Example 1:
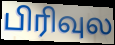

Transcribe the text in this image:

பிரிவுல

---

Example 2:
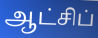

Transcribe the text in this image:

ஆட்சிப்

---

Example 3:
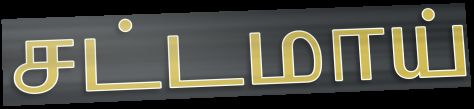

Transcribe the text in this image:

சட்டமாய்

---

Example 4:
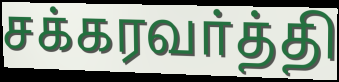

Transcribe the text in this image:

சக்கரவர்த்தி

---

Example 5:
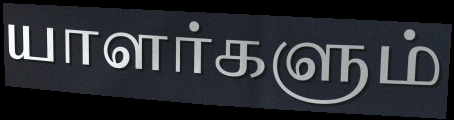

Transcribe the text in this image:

யாளர்களும்